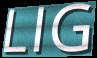
LIG